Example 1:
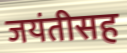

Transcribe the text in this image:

जयंतीसह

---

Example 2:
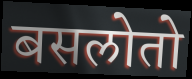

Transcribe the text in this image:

बसलोतो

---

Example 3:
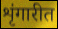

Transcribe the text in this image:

शृंगारीत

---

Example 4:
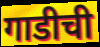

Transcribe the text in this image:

गाडीची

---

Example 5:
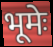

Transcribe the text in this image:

भूमेः